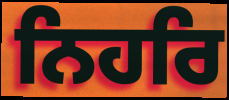
ਨਿਹਰਿ